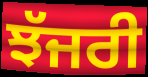
ਝੱਜਰੀ